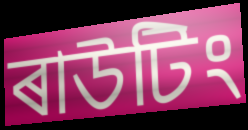
ৰাউটিং